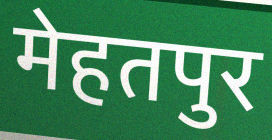
मेहतपुर